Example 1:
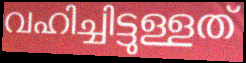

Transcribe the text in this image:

വഹിച്ചിട്ടുള്ളത്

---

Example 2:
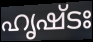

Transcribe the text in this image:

ഹൃഷ്ടഃ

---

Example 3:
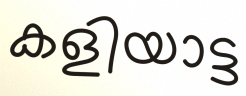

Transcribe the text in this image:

കളിയാട്ട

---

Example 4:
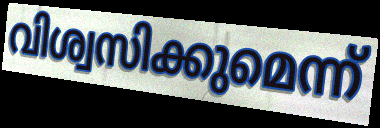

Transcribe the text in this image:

വിശ്വസിക്കുമെന്ന്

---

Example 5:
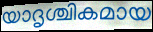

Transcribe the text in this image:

യാദൃശ്ചികമായ